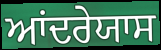
ਆਂਦਰੇਯਾਸ